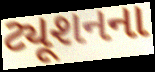
ટ્યૂશનના